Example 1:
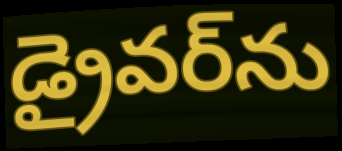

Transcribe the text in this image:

డ్రైవర్‌ను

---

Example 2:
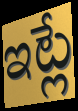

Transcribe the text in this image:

ఇట్లే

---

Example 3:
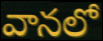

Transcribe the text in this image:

వానలో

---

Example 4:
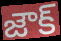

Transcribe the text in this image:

జౌక్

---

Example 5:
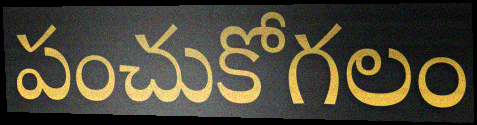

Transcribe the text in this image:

పంచుకోగలం